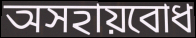
অসহায়বোধ